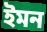
ইমন